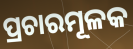
ପ୍ରଚାରମୂଳକ